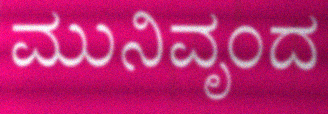
ಮುನಿವೃಂದ